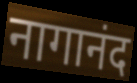
नागानंद